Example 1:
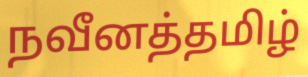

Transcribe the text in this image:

நவீனத்தமிழ்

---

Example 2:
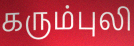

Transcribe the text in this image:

கரும்புலி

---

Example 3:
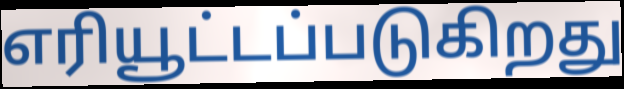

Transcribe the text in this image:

எரியூட்டப்படுகிறது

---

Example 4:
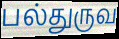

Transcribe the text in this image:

பல்துருவ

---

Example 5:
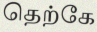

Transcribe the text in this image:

தெற்கே